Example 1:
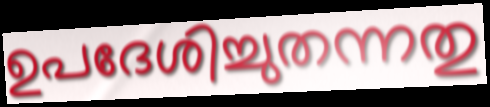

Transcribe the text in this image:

ഉപദേശിച്ചുതന്നതു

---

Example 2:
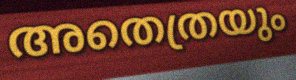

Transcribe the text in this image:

അതെത്രയും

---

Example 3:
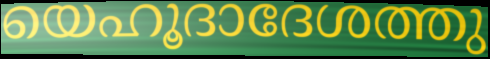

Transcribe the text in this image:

യെഹൂദാദേശത്തു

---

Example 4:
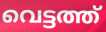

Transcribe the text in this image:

വെട്ടത്ത്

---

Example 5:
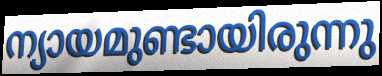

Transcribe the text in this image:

ന്യായമുണ്ടായിരുന്നു